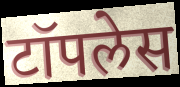
टॉपलेस